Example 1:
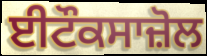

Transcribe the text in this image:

ਈਟੌਕਸਾਜ਼ੋਲ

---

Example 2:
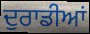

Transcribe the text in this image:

ਦੁਰਾਡੀਆਂ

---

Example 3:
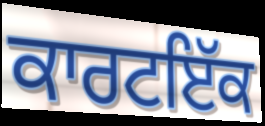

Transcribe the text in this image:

ਕਾਰਟਇੱਕ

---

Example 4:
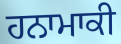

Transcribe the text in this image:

ਹਨਾਮਾਕੀ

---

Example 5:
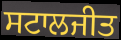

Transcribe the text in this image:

ਸਟਾਲਜੀਤ